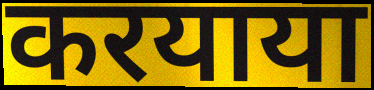
करयाया